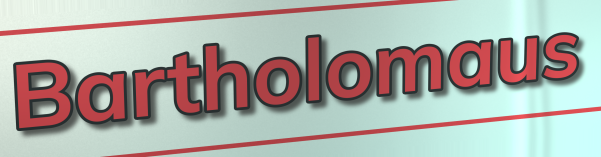
Bartholomaus